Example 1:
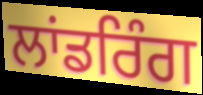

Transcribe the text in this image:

ਲਾਂਡਰਿੰਗ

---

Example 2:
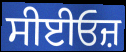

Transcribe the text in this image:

ਸੀਈਓਜ਼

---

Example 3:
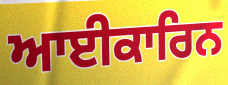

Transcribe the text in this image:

ਆਈਕਾਰਿਨ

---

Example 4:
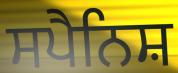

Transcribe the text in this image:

ਸਪੈਨਿਸ਼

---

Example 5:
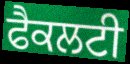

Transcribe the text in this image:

ਫੈਕਲਟੀ